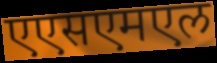
एएसएमएल